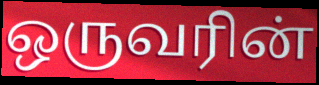
ஒருவரின்